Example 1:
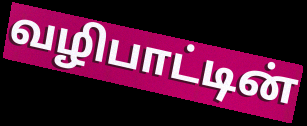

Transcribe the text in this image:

வழிபாட்டின்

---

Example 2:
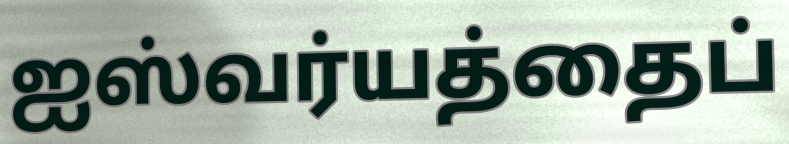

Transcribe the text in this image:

ஐஸ்வர்யத்தைப்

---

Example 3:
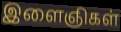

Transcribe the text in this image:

இளைஞிகள்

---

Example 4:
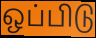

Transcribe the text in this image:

ஒப்பிடு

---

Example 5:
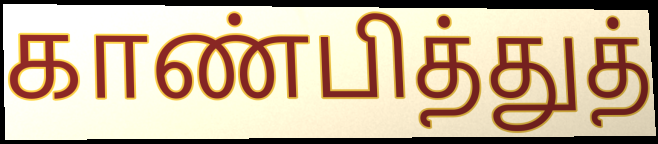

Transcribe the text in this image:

காண்பித்துத்